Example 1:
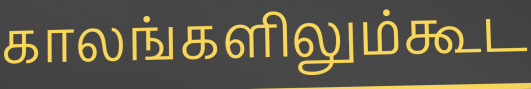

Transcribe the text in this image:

காலங்களிலும்கூட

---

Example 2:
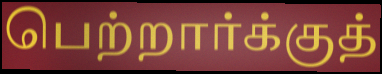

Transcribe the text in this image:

பெற்றார்க்குத்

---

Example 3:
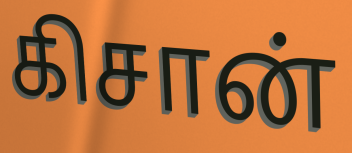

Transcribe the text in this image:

கிசான்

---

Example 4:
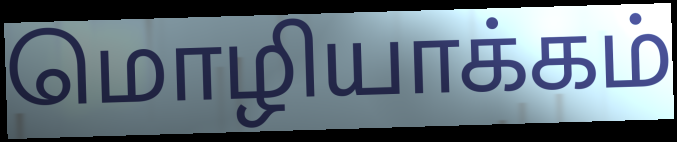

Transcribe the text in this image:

மொழியாக்கம்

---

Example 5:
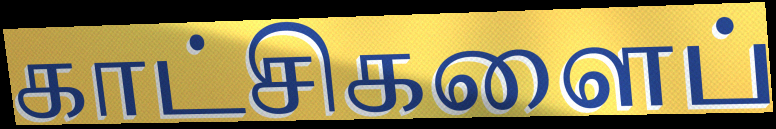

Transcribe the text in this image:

காட்சிகளைப்